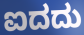
ಐದದು